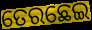
ତେରଛେଇ